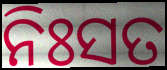
ନିଃସତ